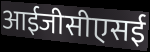
आईजीसीएसई